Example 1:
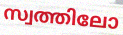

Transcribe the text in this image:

സ്വത്തിലോ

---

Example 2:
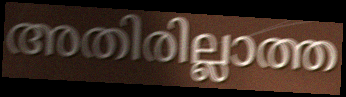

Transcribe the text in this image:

അതിരില്ലാത്ത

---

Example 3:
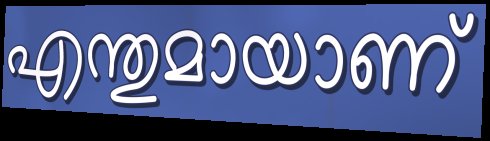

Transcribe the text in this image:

എന്തുമായാണ്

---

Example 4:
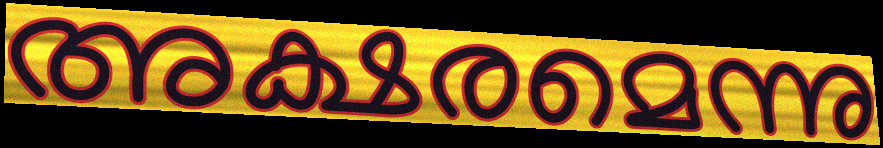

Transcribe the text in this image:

അക്ഷരമെന്നു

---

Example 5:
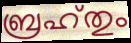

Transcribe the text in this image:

ബ്രഹ്തും